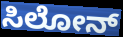
ಸಿಲೋನ್